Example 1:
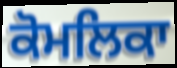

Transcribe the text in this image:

ਕੋਮਲਿਕਾ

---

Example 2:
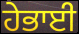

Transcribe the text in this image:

ਹੇਭਾਈ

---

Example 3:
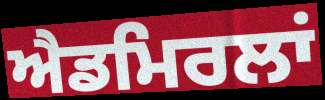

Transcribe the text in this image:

ਐਡਮਿਰਲਾਂ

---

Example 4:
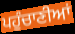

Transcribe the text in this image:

ਪਹੁੰਚਾਣੀਆਂ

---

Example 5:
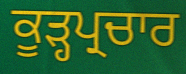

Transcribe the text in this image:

ਕੂੜ੍ਹਪ੍ਰਚਾਰ